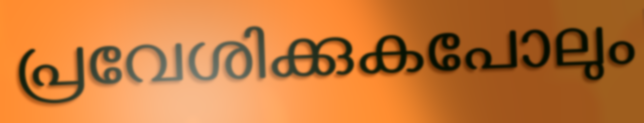
പ്രവേശിക്കുകപോലും